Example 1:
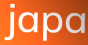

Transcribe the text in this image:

japa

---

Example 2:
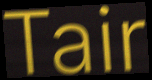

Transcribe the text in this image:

Tair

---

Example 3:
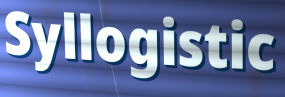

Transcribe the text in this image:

Syllogistic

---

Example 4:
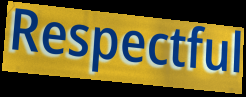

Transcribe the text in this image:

Respectful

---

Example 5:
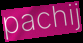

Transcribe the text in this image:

pachij